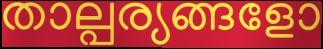
താല്പര്യങ്ങളോ